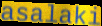
asalaki